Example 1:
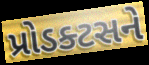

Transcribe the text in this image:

પ્રોડક્ટસને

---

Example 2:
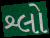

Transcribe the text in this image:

શ્લો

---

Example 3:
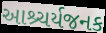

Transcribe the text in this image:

આશ્ર્ચર્યજનક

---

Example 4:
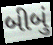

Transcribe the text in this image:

બીબું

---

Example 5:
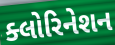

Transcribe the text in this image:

ક્લોરિનેશન